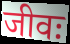
जीवः